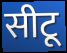
सीटू